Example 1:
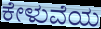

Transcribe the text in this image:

ಕೇಳುವೆಯ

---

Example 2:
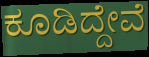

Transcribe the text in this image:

ಕೂಡಿದ್ದೇವೆ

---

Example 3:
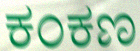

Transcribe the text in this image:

ಕಂಕಣ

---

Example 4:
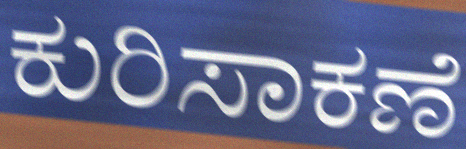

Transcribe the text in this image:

ಕುರಿಸಾಕಣೆ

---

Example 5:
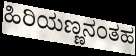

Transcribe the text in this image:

ಹಿರಿಯಣ್ಣನಂತಹ